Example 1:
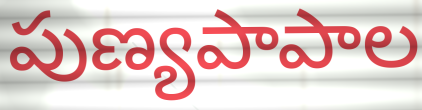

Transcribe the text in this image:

పుణ్యపాపాల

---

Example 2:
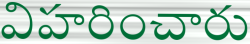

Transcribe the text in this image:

విహరించారు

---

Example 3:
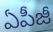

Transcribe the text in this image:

ఏపీజీ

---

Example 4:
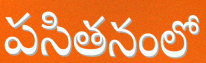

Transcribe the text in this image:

పసితనంలో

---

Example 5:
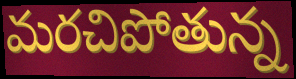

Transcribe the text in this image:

మరచిపోతున్న